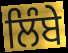
ਲਿੰਬੇ